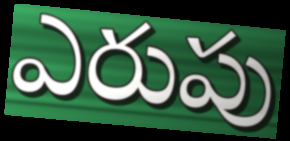
ఎరుపు